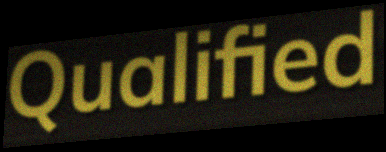
Qualified